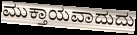
ಮುಕ್ತಾಯವಾದುದು